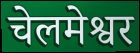
चेलमेश्वर